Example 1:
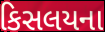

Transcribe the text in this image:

કિસલયના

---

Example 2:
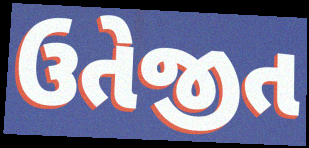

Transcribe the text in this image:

ઉતેજીત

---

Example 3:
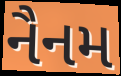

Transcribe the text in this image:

નૈનમ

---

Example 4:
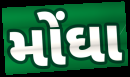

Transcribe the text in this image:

મોંઘા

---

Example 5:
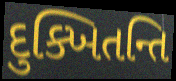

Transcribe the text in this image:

દુક્ખિતન્તિ